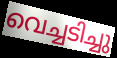
വെച്ചടിച്ചു